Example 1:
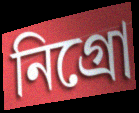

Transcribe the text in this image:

নিগ্ৰো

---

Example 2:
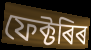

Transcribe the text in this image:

ফেক্টৰিৰ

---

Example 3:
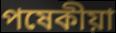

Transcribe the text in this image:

পষেকীয়া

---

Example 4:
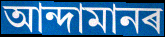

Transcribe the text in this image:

আন্দামানৰ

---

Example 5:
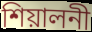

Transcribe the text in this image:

শিয়ালনী